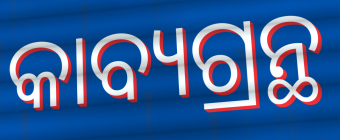
କାବ୍ୟଗ୍ରନ୍ଥ